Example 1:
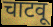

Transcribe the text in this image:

चाटवू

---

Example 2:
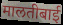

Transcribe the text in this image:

मालतीबाई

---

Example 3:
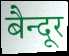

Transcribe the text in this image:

बैन्दूर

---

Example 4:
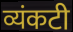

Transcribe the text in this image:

व्यंकटी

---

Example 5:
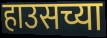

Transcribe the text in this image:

हाउसच्या